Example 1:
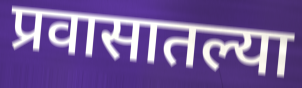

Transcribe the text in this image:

प्रवासातल्या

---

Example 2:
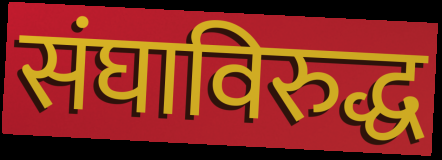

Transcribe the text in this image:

संघाविरुद्ध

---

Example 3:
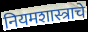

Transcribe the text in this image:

नियमशास्त्राचे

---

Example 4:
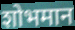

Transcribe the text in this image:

शोभमान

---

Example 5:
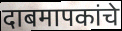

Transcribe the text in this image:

दाबमापकांचे